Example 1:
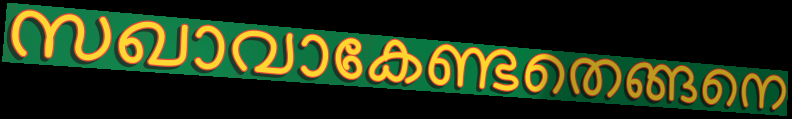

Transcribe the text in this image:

സഖാവാകേണ്ടതെങ്ങനെ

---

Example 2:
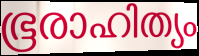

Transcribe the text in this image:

ഭൂരാഹിത്യം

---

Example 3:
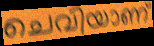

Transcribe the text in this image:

ചെവിയാണ്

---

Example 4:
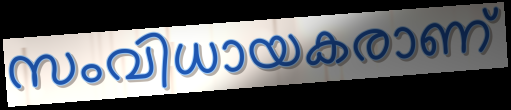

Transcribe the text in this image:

സംവിധായകരാണ്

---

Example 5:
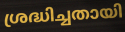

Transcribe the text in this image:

ശ്രദ്ധിച്ചതായി